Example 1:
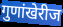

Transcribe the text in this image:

गुणांखेरीज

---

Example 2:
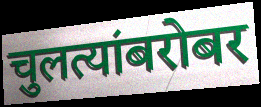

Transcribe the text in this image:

चुलत्यांबरोबर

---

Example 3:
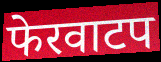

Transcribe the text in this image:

फेरवाटप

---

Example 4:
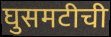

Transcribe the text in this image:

घुसमटीची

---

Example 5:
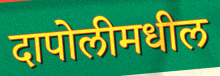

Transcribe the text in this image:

दापोलीमधील